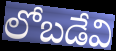
లోబడేవి